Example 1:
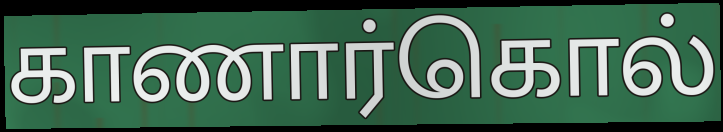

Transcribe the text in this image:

காணார்கொல்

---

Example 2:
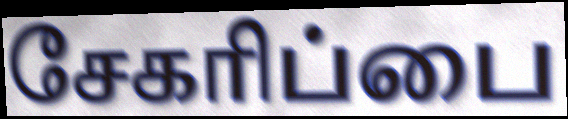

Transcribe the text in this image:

சேகரிப்பை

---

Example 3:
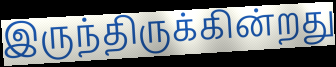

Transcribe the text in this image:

இருந்திருக்கின்றது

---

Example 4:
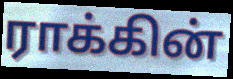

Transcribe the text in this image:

ராக்கின்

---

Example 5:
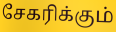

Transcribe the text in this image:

சேகரிக்கும்